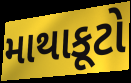
માથાકૂટો